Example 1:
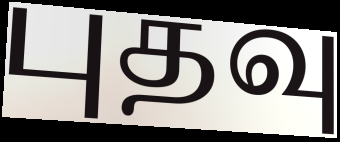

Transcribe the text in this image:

புதவு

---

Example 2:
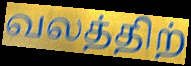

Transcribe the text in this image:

வலத்திற்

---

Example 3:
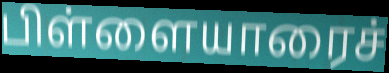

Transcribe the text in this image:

பிள்ளையாரைச்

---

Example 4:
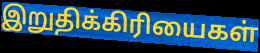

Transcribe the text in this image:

இறுதிக்கிரியைகள்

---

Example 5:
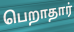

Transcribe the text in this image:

பெறாதார்